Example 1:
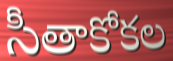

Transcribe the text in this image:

సీతాకోకల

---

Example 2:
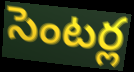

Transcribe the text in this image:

సెంటర్ల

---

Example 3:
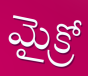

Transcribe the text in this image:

మైక్రో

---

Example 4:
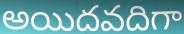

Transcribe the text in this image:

అయిదవదిగా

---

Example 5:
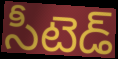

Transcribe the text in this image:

సీటెడ్